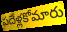
పదేళ్లకోమారు